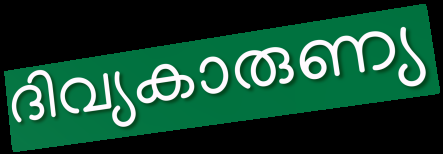
ദിവ്യകാരുണ്യ